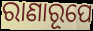
ରାଣାରୂପେ